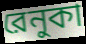
রেনুকা